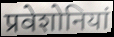
प्रवेशोनियां